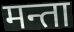
मन्ता